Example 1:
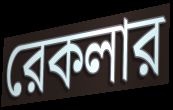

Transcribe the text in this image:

রেকলার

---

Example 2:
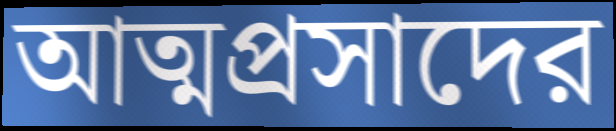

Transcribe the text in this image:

আত্মপ্রসাদের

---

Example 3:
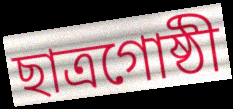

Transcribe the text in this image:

ছাত্রগোষ্ঠী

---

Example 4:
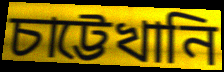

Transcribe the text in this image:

চাট্টেখানি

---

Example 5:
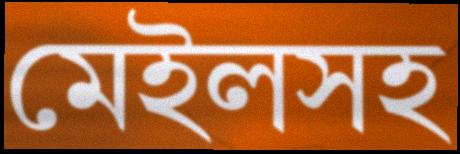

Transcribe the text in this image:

মেইলসহ